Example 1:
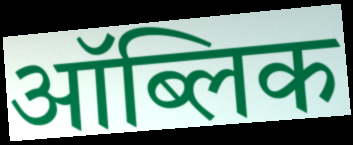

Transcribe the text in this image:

ऑब्लिक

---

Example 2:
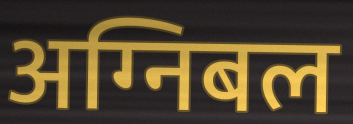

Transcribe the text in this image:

अग्निबल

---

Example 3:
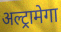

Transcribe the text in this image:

अल्ट्रामेगा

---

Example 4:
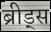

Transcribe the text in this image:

ब्रीड्स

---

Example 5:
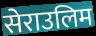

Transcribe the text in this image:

सेराउलिम